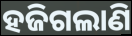
ହଜିଗଲାଣି